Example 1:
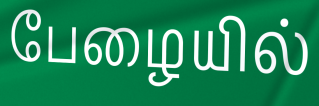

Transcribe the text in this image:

பேழையில்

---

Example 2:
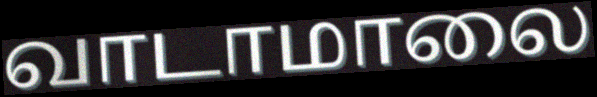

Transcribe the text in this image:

வாடாமாலை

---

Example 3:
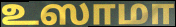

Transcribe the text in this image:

உஸாமா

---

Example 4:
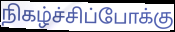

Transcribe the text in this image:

நிகழ்ச்சிப்போக்கு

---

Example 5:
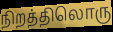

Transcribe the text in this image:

நிறத்திலொரு